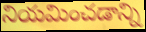
నియమించడాన్ని